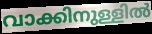
വാക്കിനുള്ളിൽ